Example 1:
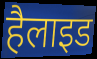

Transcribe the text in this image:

हैलाइड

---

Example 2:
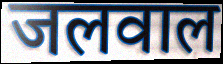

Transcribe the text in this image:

जलवाल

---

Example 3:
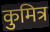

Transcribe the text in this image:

कुमित्र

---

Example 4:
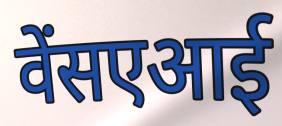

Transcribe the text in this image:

वेंसएआई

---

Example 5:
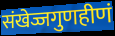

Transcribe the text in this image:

संखेज्जगुणहीणं